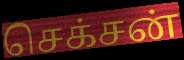
செக்சன்